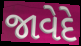
જાવેદે